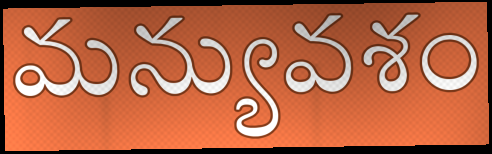
మన్యువశం